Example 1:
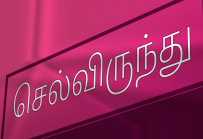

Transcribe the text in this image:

செல்விருந்து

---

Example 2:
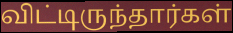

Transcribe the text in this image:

விட்டிருந்தார்கள்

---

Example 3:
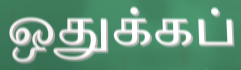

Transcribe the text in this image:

ஒதுக்கப்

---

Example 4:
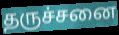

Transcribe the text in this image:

தருச்சனை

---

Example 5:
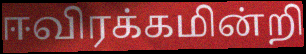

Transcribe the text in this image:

ஈவிரக்கமின்றி